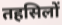
तहसिलों